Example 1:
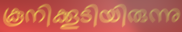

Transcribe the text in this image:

കൂനിക്കൂടിയിരുന്നു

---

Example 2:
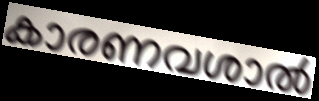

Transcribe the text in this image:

കാരണവശാൽ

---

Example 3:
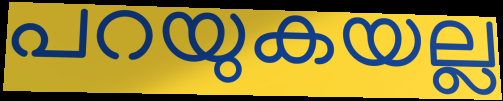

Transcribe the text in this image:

പറയുകയല്ല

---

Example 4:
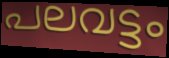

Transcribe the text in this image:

പലവട്ടം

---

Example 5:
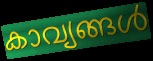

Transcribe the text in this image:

കാവ്യങ്ങൾ